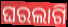
ଘରଲାଗି